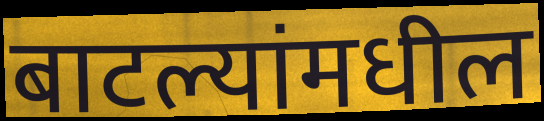
बाटल्यांमधील